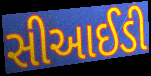
સીઆઈડી